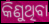
କିଣୁଥିବା